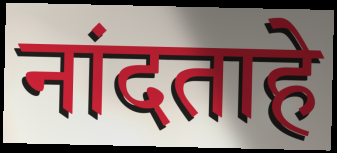
नांदताहे